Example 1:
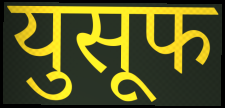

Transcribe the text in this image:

युसूफ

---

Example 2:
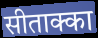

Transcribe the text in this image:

सीताक्का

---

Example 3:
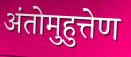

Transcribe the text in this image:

अंतोमुहुत्तेण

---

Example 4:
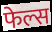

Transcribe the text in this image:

फेल्स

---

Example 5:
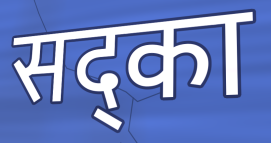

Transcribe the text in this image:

सद्का